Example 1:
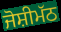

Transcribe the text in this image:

ਜੋਸ਼ੀਮੱਠ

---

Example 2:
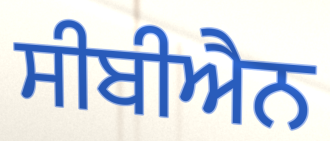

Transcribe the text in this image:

ਸੀਬੀਐਨ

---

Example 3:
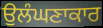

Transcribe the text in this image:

ਉਲੰਘਣਾਕਾਰ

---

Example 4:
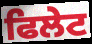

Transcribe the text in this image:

ਫਿਲੇਟ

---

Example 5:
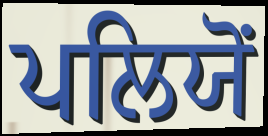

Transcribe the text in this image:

ਪਲਿਯੋਂ